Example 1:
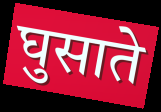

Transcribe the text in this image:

घुसाते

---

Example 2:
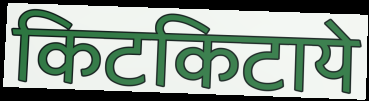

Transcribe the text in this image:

किटकिटाये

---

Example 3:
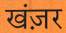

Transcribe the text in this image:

खंज़र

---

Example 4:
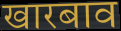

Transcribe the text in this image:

खारबाव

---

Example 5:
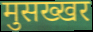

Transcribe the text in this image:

मुसख्खर